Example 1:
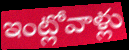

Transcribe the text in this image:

ఇంట్లోవాళ్లు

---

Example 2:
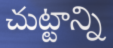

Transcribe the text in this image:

చుట్టాన్ని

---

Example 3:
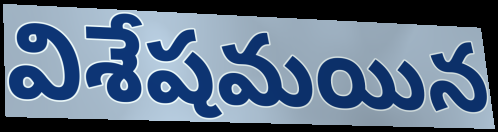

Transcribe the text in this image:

విశేషమయిన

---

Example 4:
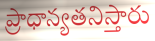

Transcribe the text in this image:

ప్రాధాన్యతనిస్తారు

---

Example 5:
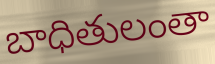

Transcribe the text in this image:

బాధితులంతా